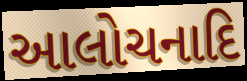
આલોચનાદિ